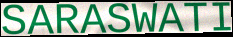
SARASWATI